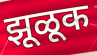
झूळूक